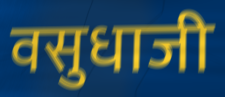
वसुधाजी